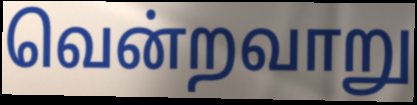
வென்றவாறு